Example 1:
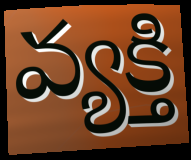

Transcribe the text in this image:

వ్యక్తి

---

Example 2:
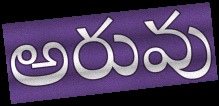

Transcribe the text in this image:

అరువు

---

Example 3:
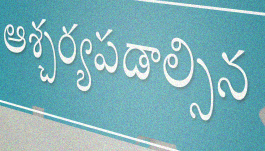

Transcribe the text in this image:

ఆశ్చర్యపడాల్సిన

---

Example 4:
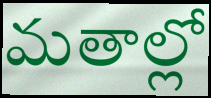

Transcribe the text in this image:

మతాల్లో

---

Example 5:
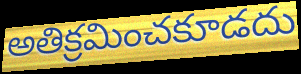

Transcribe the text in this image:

అతిక్రమించకూడదు